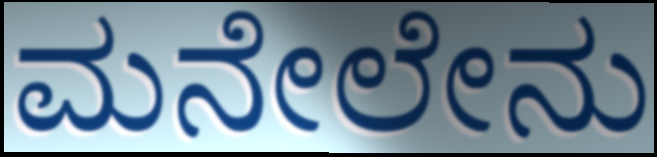
ಮನೇಲೇನು